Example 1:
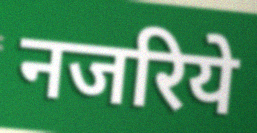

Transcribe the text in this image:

नजरिये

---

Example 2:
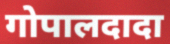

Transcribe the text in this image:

गोपालदादा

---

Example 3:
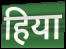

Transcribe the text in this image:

हिया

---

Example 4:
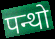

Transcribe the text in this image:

पन्थो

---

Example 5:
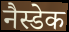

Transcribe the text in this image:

नैस्डेक